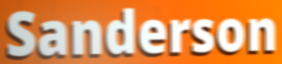
Sanderson